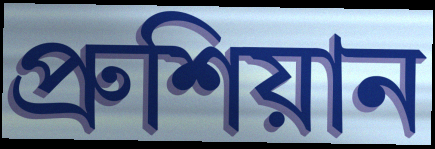
প্রুশিয়ান